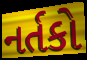
નર્તકો